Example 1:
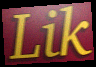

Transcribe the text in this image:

Lik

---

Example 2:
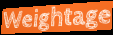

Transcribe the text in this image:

Weightage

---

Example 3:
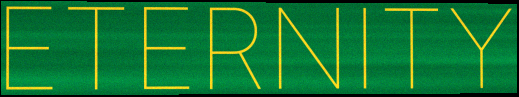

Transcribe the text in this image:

ETERNITY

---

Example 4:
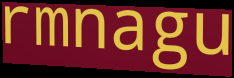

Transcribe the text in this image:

rmnagu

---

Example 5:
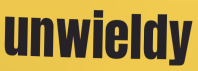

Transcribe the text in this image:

unwieldy